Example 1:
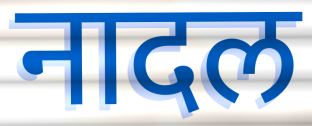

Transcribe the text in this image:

नादल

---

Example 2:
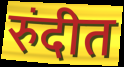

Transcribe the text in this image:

रुंदीत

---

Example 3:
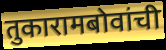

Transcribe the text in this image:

तुकारामबोवांची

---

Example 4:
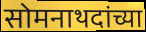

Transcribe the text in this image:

सोमनाथदांच्या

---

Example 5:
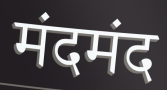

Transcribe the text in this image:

मंदमंद